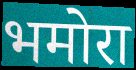
भमोरा